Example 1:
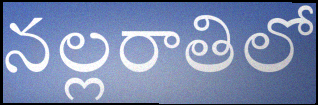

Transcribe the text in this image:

నల్లరాతిలో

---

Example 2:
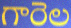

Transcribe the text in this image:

గారెల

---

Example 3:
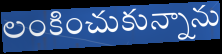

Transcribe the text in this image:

లంకించుకున్నాను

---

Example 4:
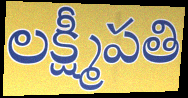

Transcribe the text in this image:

లక్ష్మీపతి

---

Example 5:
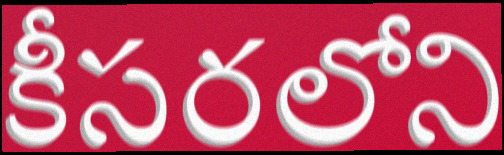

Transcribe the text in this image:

కీసరలోని